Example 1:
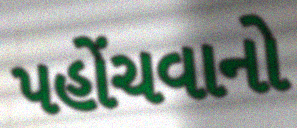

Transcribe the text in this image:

પહોંચવાનો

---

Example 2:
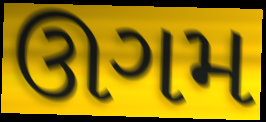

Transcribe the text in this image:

ઊગમ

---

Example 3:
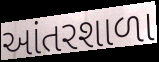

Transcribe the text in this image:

આંતરશાળા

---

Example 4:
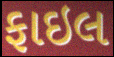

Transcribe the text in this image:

ફાઇલ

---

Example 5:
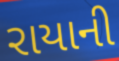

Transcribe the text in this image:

રાયાની